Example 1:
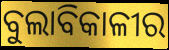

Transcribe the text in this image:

ବୁଲାବିକାଳୀର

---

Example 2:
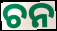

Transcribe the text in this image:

ଚନ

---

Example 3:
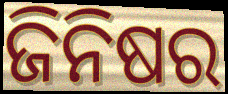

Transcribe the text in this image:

ଜିନିଷର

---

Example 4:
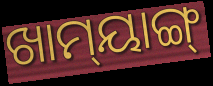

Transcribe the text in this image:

ଖାମ୍‌ୟାଙ୍ଗ୍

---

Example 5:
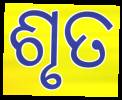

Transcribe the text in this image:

ଶୃତ